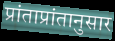
प्रांताप्रांतानुसार